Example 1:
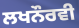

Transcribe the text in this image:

ਲਖਨੌਰਵੀ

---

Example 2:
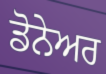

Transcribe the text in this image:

ਡੋਨੇਅਰ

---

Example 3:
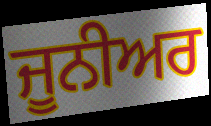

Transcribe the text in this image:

ਜੂਨੀਅਰ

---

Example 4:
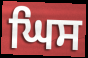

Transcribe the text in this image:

ਘਿਸ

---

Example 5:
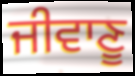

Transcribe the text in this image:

ਜੀਵਾਣੂ